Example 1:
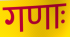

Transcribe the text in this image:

गणाः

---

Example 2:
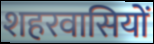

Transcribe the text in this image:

शहरवासियों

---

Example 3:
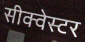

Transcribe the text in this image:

सीक्वेस्टर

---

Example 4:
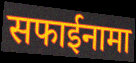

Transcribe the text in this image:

सफाईनामा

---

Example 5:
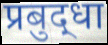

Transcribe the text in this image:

प्रबुद्धा